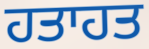
ਹਤਾਹਤ